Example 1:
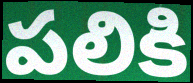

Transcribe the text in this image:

పలికి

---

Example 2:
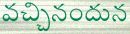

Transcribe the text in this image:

వచ్చినందున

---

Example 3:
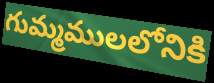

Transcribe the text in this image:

గుమ్మములలోనికి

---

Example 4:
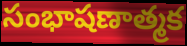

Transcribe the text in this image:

సంభాషణాత్మక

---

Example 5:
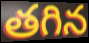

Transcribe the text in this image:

తగిన